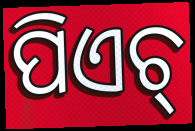
ପିଏଚ୍